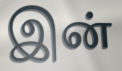
இன்